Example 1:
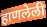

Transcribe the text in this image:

हाणलेली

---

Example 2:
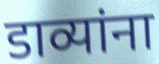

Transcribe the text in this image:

डाव्यांना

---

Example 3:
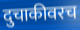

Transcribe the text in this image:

दुचाकीवरच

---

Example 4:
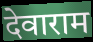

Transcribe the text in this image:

देवाराम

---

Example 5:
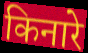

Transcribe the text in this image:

किनारे